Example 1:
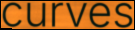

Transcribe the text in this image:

curves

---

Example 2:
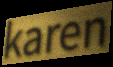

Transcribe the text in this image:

karen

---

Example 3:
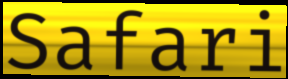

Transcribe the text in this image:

Safari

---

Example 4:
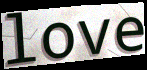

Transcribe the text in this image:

love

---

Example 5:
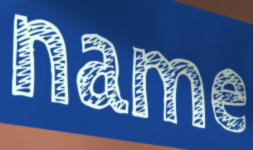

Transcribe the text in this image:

name